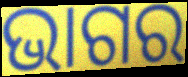
ଭାଗର